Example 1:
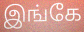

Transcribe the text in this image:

இங்கே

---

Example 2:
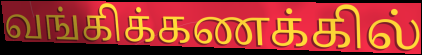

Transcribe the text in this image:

வங்கிக்கணக்கில்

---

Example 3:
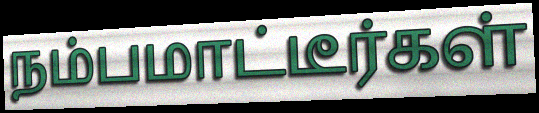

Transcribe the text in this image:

நம்பமாட்டீர்கள்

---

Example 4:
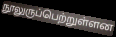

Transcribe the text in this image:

நூலுருப்பெற்றுள்ளன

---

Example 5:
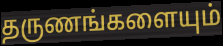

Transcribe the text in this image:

தருணங்களையும்